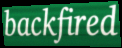
backfired